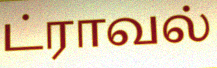
ட்ராவல்